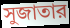
সুজাতার